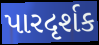
પારદૃર્શક